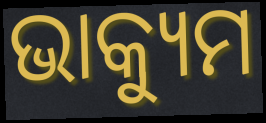
ଭାକ୍ୟୁମ